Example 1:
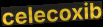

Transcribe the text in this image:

celecoxib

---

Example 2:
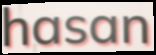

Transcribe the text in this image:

hasan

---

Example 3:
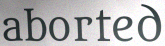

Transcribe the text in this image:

aborted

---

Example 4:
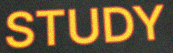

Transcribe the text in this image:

STUDY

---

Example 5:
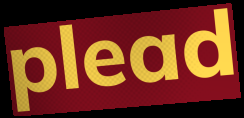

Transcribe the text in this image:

plead